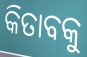
କିତାବକୁ